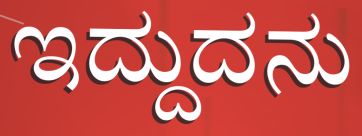
ಇದ್ದುದನು